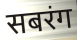
सबरंग